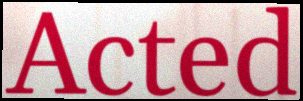
Acted